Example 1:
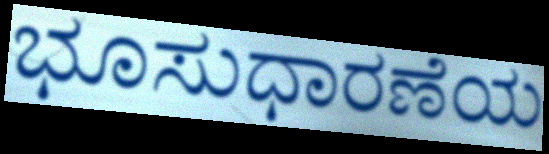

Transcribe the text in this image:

ಭೂಸುಧಾರಣೆಯ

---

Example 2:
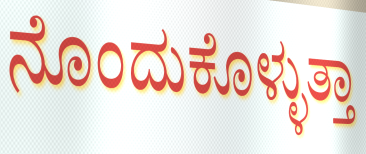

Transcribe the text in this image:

ನೊಂದುಕೊಳ್ಳುತ್ತಾ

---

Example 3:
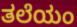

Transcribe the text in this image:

ತಲೆಯಂ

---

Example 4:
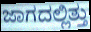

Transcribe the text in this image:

ಜಾಗದಲ್ಲಿತ್ತು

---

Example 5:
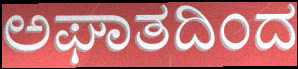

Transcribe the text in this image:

ಅಘಾತದಿಂದ